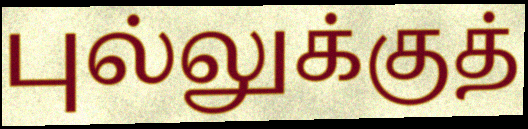
புல்லுக்குத்